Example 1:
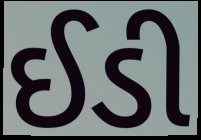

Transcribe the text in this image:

ઈડી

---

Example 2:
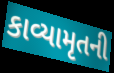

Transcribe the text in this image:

કાવ્યામૃતની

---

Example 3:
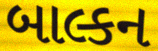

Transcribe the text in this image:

બાલ્કન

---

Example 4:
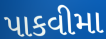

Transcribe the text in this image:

પાકવીમા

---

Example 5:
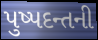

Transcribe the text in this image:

પુષ્પદન્તની